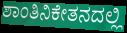
ಶಾಂತಿನಿಕೇತನದಲ್ಲಿ